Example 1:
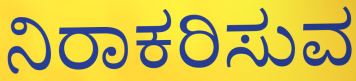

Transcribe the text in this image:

ನಿರಾಕರಿಸುವ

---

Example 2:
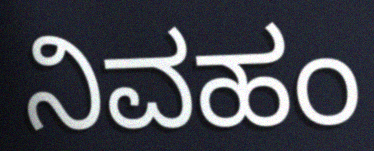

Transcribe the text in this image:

ನಿವಹಂ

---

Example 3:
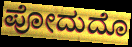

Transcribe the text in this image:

ಪೋದುದೊ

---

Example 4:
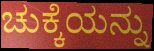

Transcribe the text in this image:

ಚುಕ್ಕೆಯನ್ನು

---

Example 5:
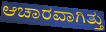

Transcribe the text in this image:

ಆಚಾರವಾಗಿತ್ತು